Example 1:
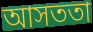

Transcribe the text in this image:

আসততা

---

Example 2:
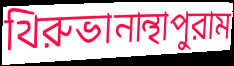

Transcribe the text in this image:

থিরুভানান্থাপুরাম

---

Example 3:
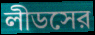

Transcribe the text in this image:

লীডসের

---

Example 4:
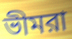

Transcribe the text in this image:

ভীমরা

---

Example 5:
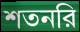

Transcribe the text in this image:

শতনরি